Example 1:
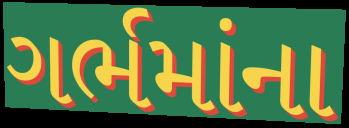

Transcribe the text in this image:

ગર્ભમાંના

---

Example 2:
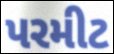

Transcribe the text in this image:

પરમીટ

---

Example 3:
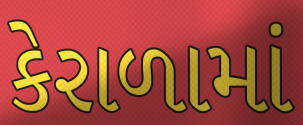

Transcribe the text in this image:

કેરાળામાં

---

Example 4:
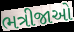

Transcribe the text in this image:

ભત્રીજાઓ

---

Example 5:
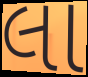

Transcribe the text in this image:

લા